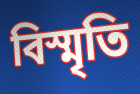
বিস্মৃতি